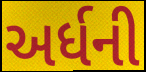
અર્ધની